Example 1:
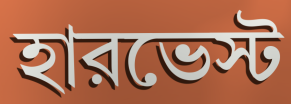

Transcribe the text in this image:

হারভেস্ট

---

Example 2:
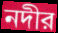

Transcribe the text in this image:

নদীর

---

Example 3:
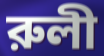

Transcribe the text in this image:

রুলী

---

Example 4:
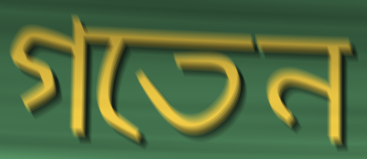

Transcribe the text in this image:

গতেন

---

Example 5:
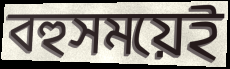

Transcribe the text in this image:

বহুসময়েই